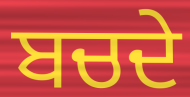
ਬਚਦੇ